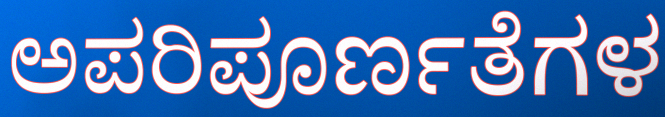
ಅಪರಿಪೂರ್ಣತೆಗಳ